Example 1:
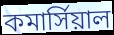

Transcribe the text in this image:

কমার্সিয়াল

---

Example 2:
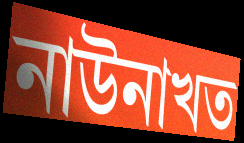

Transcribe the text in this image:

নাউনাখত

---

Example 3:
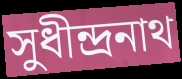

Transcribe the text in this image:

সুধীন্দ্রনাথ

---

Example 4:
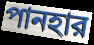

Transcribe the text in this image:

পানহার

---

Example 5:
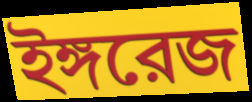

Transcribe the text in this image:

ইঙ্গরেজ